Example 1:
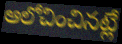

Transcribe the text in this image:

ఆలోచించినట్లే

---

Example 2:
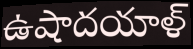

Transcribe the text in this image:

ఉషాదయాళ్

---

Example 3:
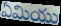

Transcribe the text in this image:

ఏమియు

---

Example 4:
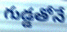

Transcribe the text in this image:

గుడ్డతోనే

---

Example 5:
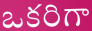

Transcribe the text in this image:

ఒకరిగా